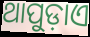
ଥାପୁଡ଼ାଏ